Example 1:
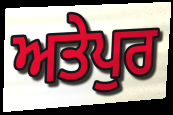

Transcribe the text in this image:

ਅਤੇਪੁਰ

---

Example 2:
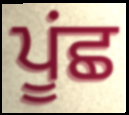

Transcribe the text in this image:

ਪੂਂਛ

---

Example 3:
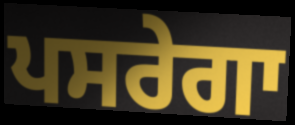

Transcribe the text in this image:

ਪਸਰੇਗਾ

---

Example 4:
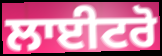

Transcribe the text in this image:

ਲਾਈਟਰੋ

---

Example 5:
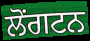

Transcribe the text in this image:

ਲੋਂਗਟਨ